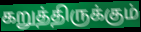
கறுத்திருக்கும்